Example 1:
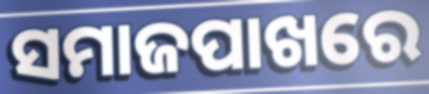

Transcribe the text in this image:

ସମାଜପାଖରେ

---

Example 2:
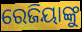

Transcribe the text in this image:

ରେଜିୟାଙ୍କୁ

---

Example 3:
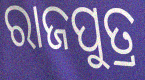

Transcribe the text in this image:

ରାଜପୁତ୍ର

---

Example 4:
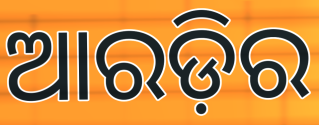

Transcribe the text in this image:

ଆରଡ଼ିର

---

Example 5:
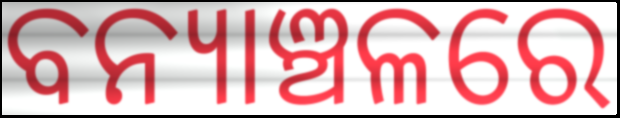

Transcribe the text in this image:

ବନ୍ୟାଞ୍ଚଳରେ